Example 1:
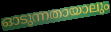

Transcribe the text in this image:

ഓടുന്നതായാലും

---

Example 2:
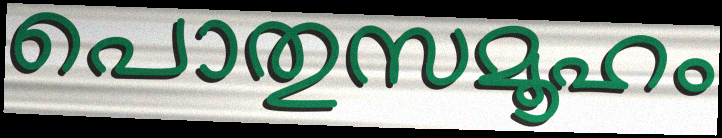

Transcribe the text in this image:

പൊതുസമൂഹം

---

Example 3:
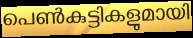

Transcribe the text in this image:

പെൺകുട്ടികളുമായി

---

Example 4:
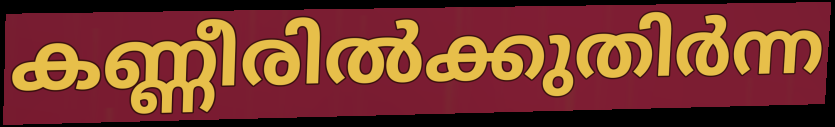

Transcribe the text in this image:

കണ്ണീരിൽക്കുതിർന്ന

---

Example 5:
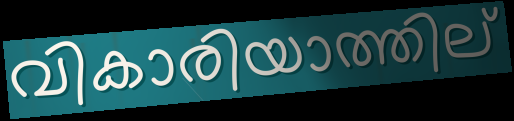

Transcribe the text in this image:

വികാരിയാത്തില്